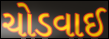
ચોડવાઈ